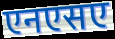
एनएसए